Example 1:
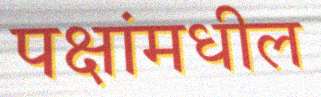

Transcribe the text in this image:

पक्षांमधील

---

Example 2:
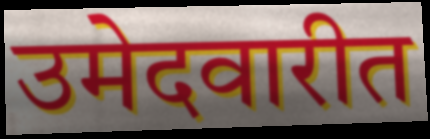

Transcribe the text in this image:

उमेदवारीत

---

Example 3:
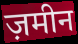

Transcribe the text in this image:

ज़मीन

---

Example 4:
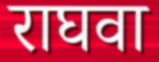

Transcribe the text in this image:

राघवा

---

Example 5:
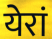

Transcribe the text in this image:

येरां